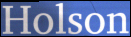
Holson